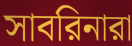
সাবরিনারা